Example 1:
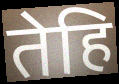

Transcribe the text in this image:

तेहि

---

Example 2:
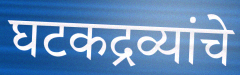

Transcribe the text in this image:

घटकद्रव्यांचे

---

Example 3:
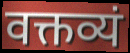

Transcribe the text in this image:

वक्तव्यं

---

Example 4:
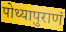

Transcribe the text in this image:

पोथ्यापुराणं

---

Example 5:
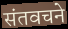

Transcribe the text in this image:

संतवचने